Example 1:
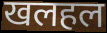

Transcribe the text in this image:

खलहल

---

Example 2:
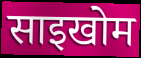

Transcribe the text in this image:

साइखोम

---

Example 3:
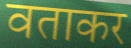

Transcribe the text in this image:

वताकर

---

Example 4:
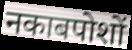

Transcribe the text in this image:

नकाबपोशों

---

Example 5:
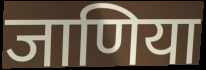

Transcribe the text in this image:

जाणिया